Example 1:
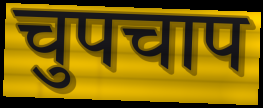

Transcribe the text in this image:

चुपचाप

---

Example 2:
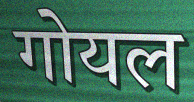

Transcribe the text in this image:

गोयल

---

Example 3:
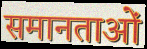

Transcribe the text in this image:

समानताओं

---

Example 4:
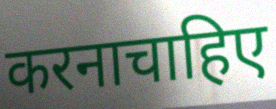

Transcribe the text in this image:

करनाचाहिए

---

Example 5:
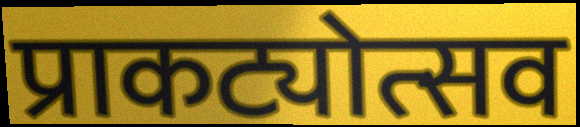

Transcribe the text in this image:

प्राकट्योत्सव